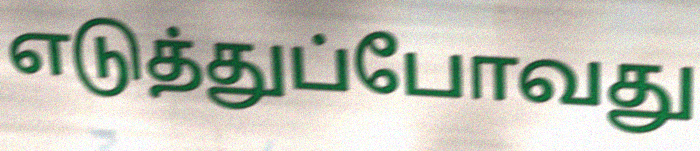
எடுத்துப்போவது